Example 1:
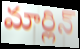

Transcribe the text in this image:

మార్లిన్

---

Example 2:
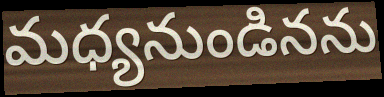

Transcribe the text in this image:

మధ్యనుండినను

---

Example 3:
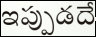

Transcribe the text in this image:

ఇప్పుడదే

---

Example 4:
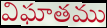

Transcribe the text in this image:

విఘాతము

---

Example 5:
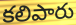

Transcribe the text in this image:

కలిపారు